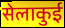
सेलाकुई